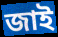
জাই